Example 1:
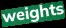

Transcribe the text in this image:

weights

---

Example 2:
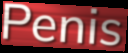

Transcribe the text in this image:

Penis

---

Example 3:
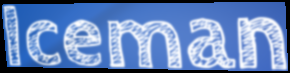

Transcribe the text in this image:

Iceman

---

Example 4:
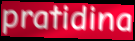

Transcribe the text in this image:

pratidina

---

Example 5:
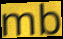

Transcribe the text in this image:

mb